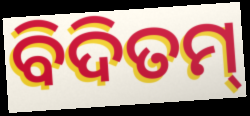
ବିଦିତମ୍